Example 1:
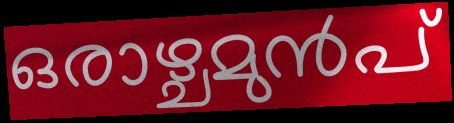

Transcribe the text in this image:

ഒരാഴ്ചമുൻപ്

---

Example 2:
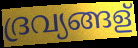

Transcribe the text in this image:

ദ്രവ്യങ്ങള്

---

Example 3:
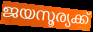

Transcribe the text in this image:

ജയസൂര്യക്ക്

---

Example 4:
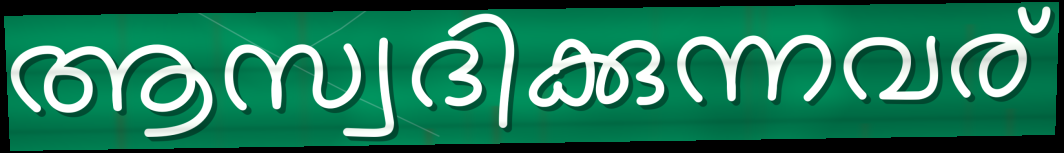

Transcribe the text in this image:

ആസ്വദിക്കുന്നവര്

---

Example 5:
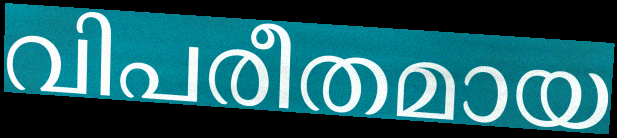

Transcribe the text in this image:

വിപരീതമായ